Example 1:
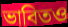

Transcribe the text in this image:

ভাবিতও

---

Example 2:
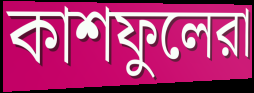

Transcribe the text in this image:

কাশফুলেরা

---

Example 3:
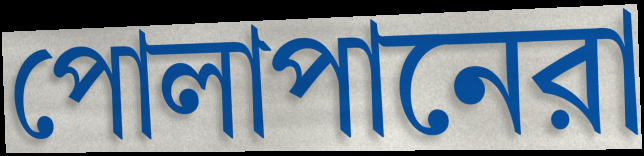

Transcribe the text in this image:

পোলাপানেরা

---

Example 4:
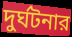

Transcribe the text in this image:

দুর্ঘটনার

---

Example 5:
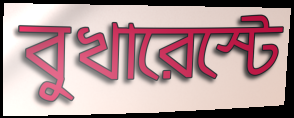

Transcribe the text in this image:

বুখারেস্টে